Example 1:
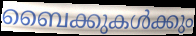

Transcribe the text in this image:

ബൈക്കുകൾക്കും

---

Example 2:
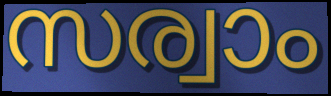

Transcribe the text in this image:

സര്വാം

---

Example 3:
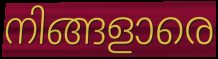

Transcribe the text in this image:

നിങ്ങളാരെ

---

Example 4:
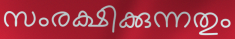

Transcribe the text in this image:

സംരക്ഷിക്കുന്നതും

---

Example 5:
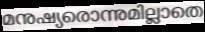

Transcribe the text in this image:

മനുഷ്യരൊന്നുമില്ലാതെ